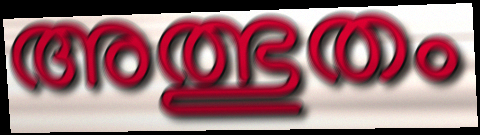
അത്ഭുതം